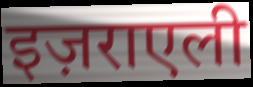
इज़राएली